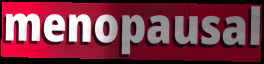
menopausal